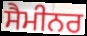
ਸੈਮੀਨਰ